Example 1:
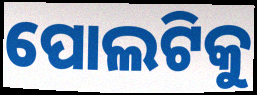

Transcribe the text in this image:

ପୋଲଟିକୁ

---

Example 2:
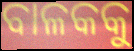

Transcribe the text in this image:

ବାଳକକୁ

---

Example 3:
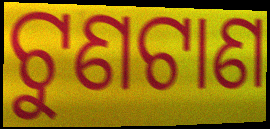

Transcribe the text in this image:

ଟୁଣଟାଣ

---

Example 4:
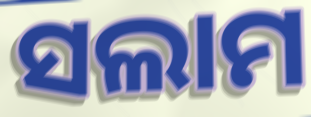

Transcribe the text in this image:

ସଲାମ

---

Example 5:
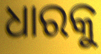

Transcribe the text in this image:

ଧାରକୁ